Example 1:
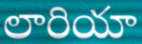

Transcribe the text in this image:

లారియా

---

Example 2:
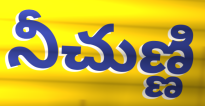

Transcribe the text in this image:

నీచుణ్ణి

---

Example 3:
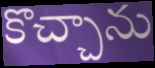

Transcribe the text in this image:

కొచ్చాను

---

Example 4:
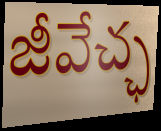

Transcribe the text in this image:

జీవేచ్ఛ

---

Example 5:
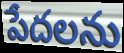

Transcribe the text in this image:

పేదలను